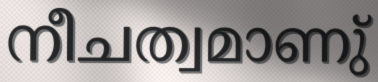
നീചത്വമാണു്